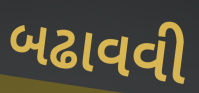
બઢાવવી